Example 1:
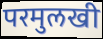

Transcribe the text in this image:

परमुलखी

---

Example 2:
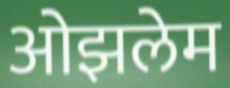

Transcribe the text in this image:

ओझलेम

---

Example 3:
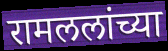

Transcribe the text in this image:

रामललांच्या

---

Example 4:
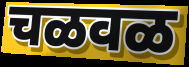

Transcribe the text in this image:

चळवळ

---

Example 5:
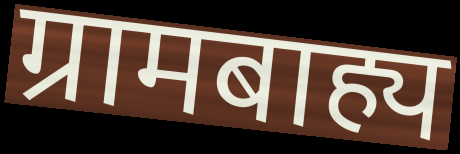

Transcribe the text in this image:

ग्रामबाह्य